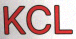
KCL